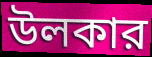
উলকার